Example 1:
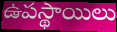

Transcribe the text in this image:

ఉపస్థాయిలు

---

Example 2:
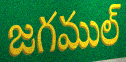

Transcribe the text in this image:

జగముల్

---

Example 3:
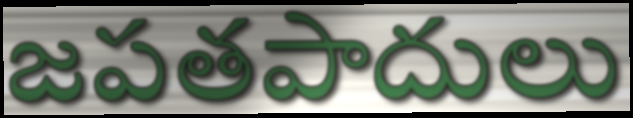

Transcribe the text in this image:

జపతపాదులు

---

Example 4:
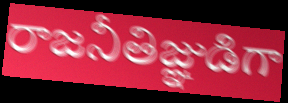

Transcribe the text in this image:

రాజనీతిజ్ఞుడిగా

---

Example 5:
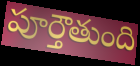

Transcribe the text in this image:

పూర్తౌతుంది